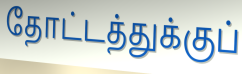
தோட்டத்துக்குப்